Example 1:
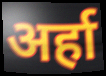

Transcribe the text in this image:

अर्हा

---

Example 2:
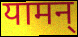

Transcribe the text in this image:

यामन्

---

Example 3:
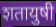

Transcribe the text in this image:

शतायुषी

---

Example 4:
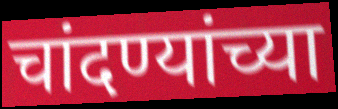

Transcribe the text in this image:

चांदण्यांच्या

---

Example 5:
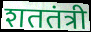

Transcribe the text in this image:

शततंत्री